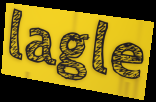
lagle